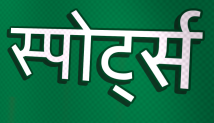
स्पोर्ट्स